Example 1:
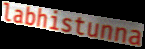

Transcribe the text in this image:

labhistunna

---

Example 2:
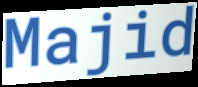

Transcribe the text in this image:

Majid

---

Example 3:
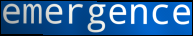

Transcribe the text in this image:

emergence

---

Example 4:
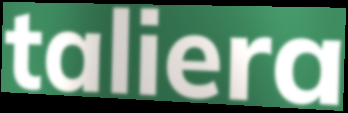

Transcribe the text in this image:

taliera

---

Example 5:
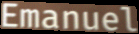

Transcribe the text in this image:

Emanuel